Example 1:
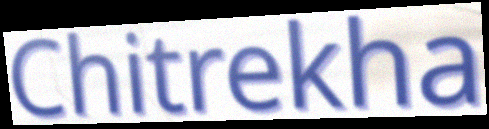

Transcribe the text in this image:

Chitrekha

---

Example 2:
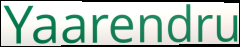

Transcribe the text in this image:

Yaarendru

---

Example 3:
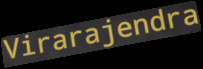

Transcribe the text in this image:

Virarajendra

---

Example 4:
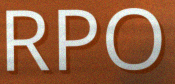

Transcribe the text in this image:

RPO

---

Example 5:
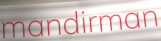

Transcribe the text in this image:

mandirman